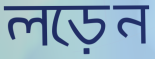
লড়েন